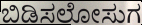
ಬಿಡಿಸಲೋಸುಗ